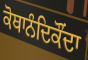
ਕੋਥਾਨੰਦਿਕੌਂਦਾ